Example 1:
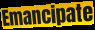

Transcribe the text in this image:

Emancipate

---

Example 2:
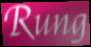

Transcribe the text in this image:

Rung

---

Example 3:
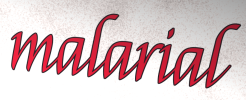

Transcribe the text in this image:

malarial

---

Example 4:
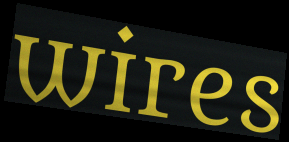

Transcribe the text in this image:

wires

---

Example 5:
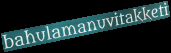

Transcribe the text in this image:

bahulamanuvitakketi